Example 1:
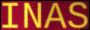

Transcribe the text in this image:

INAS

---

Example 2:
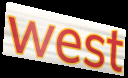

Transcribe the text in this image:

west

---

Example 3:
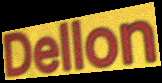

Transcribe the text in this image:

Dellon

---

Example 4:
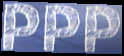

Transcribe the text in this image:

PPP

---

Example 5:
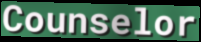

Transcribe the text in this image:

Counselor